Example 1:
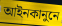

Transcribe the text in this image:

আইনকানুনে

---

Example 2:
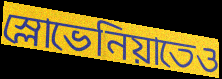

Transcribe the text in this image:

স্লোভেনিয়াতেও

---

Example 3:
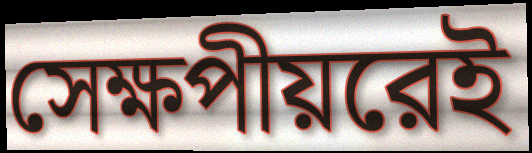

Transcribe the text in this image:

সেক্ষপীয়রেই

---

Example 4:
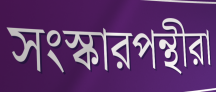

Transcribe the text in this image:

সংস্কারপন্থীরা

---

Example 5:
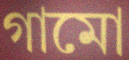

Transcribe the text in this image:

গামো